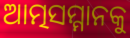
ଆତ୍ମସମ୍ମାନକୁ